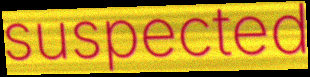
suspected